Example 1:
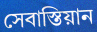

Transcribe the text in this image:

সেবাস্তিয়ান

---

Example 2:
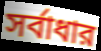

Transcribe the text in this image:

সর্বাধার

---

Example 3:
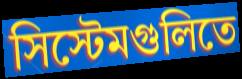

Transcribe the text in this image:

সিস্টেমগুলিতে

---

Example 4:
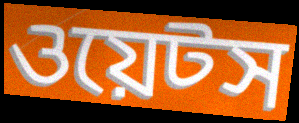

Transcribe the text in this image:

ওয়েট্স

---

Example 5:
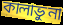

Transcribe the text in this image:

কালাভুনা